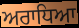
ਅਰਾਧਿਆ